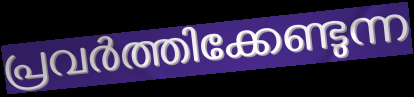
പ്രവർത്തിക്കേണ്ടുന്ന